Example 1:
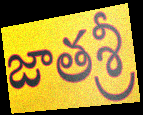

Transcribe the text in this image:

జాతశ్రీ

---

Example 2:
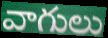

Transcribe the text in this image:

వాగులు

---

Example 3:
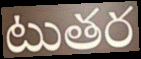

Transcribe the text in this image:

టుతర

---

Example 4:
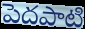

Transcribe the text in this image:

పెదపాటి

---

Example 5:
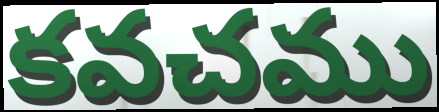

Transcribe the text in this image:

కవచము